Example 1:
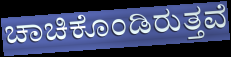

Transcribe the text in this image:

ಚಾಚಿಕೊಂಡಿರುತ್ತವೆ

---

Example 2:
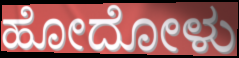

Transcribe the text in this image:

ಹೋದೋಳು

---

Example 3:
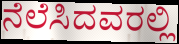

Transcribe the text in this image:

ನೆಲೆಸಿದವರಲ್ಲಿ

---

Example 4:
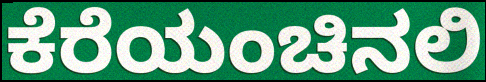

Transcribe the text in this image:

ಕೆರೆಯಂಚಿನಲಿ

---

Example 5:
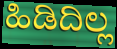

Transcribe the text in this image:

ಹಿಡಿದಿಲ್ಲ